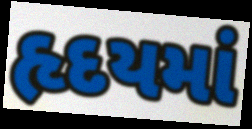
હૃદયમાં